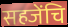
सहजेंचि